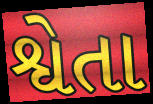
શ્વેતા